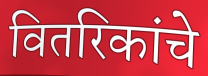
वितरिकांचे